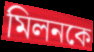
মিলনকে